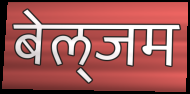
बेल्जम